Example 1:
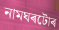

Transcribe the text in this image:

নামঘৰটোৰ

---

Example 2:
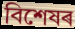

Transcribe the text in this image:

বিশেষৰ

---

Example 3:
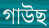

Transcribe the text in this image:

গাউছ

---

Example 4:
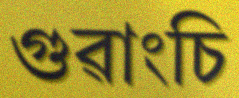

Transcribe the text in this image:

গুৱাংচি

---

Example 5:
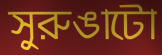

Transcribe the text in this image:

সুৰুঙাটো